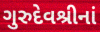
ગુરુદેવશ્રીનાં